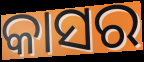
କାସର